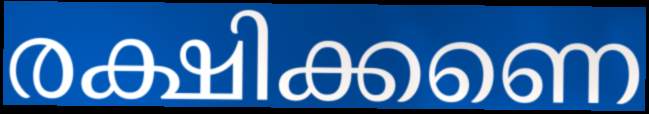
രക്ഷിക്കണെ